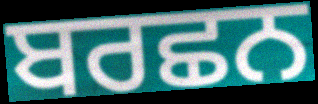
ਬਰਛਨ